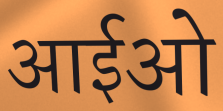
आईओ